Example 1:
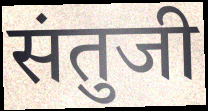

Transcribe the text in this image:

संतुजी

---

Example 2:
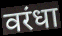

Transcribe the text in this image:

वरंधा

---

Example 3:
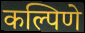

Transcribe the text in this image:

कल्पिणे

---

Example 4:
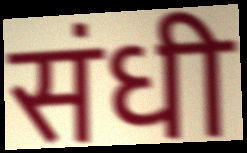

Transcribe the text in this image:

संधी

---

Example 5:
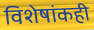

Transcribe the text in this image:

विशेषांकही